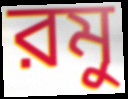
রমু